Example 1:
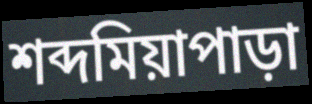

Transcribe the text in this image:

শব্দমিয়াপাড়া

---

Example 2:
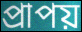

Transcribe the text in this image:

প্রাপয়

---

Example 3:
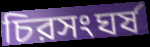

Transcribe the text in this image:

চিরসংঘর্ষ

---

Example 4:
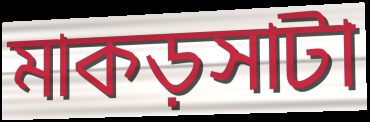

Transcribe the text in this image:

মাকড়সাটা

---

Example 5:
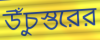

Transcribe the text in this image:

উঁচুস্তরের